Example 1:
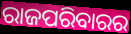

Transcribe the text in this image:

ରାଜପରିବାରର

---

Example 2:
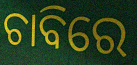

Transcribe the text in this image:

ଚାବିରେ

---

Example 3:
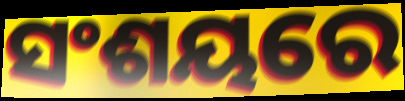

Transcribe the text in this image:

ସଂଶୟରେ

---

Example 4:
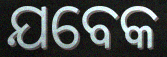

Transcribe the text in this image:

ଯବେକ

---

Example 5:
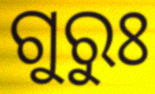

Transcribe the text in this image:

ଗୁରୁଃ